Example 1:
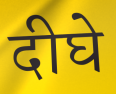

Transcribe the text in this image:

दीघे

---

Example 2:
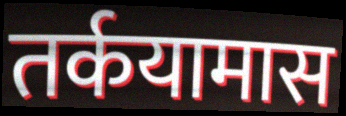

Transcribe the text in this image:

तर्कयामास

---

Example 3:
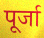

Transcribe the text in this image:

पूर्जा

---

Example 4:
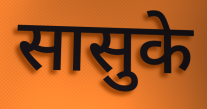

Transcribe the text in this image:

सासुके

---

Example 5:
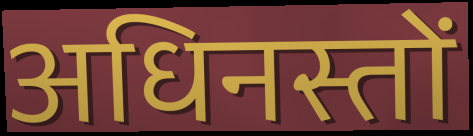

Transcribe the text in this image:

अधिनस्तों